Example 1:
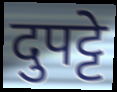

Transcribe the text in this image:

दुपट्टे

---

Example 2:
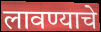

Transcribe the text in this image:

लावण्याचे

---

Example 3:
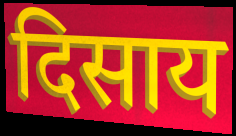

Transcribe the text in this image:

दिसाय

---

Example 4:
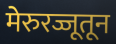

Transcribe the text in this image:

मेरुरज्जूतून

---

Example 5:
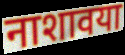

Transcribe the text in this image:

नाशावया